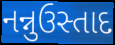
નન્નુઉસ્તાદ